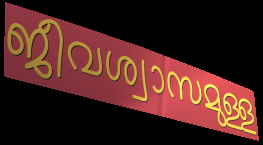
ജീവശ്വാസമുള്ള